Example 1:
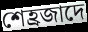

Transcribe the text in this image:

শেহ্রজাদে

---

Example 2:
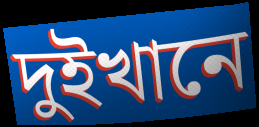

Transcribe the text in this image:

দুইখানে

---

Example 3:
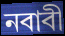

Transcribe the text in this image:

নবাবী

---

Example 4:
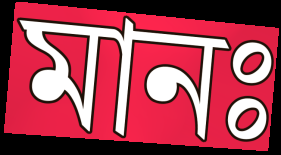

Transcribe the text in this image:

মানঃ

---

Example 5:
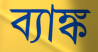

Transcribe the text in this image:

ব্যাঙ্ক